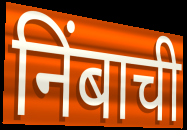
निंबाची